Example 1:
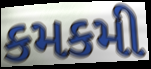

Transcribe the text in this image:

કમકમી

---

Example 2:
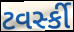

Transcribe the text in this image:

ટવર્સ્કી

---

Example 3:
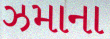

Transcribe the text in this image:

ઝમાના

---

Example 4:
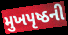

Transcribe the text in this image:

મુખપૃષ્ઠની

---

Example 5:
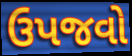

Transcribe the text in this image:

ઉપજવો